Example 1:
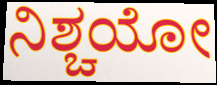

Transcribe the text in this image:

ನಿಶ್ಚಯೋ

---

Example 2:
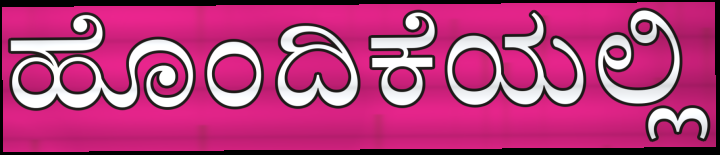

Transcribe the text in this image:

ಹೊಂದಿಕೆಯಲ್ಲಿ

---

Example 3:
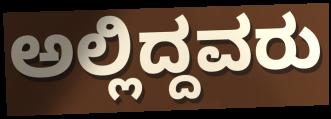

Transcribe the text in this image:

ಅಲ್ಲಿದ್ದವರು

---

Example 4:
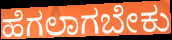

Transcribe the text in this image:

ಹೆಗಲಾಗಬೇಕು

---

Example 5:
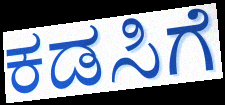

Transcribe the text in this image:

ಕಡಸಿಗೆ